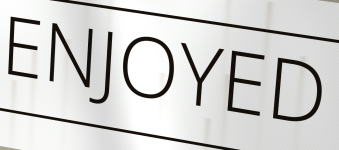
ENJOYED